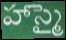
హాస్మై